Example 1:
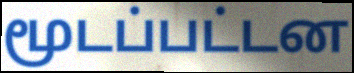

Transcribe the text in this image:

மூடப்பட்டன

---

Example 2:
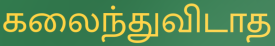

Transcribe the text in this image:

கலைந்துவிடாத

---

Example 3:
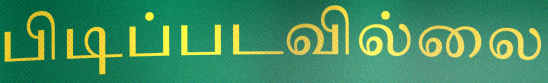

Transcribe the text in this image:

பிடிப்படவில்லை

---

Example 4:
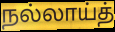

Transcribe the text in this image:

நல்லாய்த்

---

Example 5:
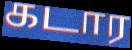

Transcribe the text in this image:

கடார